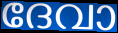
ദേവാ